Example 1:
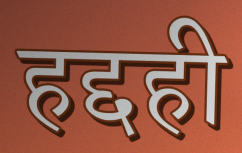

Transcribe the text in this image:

हद्दही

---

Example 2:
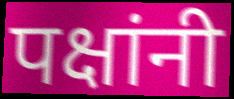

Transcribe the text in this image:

पक्षांनी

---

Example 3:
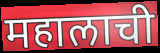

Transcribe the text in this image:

महालाची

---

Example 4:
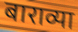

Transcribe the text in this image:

बाराव्या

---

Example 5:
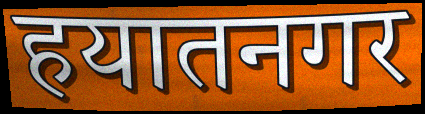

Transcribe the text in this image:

हयातनगर